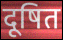
दूषित